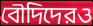
বৌদিদেরও